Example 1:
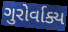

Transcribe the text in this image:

ગુરોર્વાક્ય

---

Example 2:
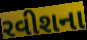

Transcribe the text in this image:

રવીશના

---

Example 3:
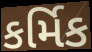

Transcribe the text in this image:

કર્મિક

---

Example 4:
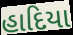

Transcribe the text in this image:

હાદિયા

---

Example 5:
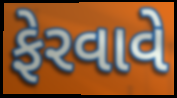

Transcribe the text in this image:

ફેરવાવે